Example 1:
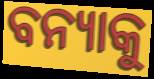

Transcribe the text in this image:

ବନ୍ୟାକୁ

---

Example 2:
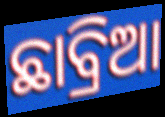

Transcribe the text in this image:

ଛାବ୍ରିଆ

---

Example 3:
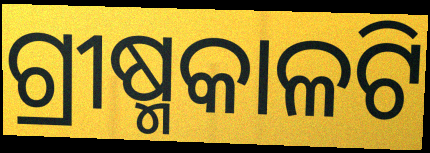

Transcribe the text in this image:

ଗ୍ରୀଷ୍ମକାଳଟି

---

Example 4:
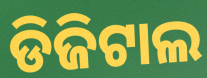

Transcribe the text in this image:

ଡିଜିଟାଲ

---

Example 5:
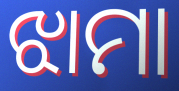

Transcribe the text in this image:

ଝାମା